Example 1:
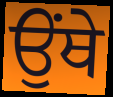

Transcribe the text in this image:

ਉੰਥੇ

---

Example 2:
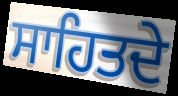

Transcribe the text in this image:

ਸਾਹਿਤਦੇ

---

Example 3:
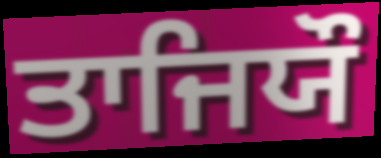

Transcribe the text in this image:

ਤਾਜਿਯੌ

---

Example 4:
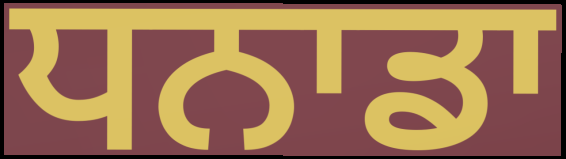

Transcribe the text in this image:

ਧਨਾਡਾ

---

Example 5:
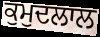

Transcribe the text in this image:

ਕੁਮੁਦਲਾਲ